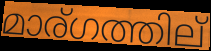
മാര്ഗത്തില്